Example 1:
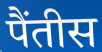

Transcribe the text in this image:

पैंतीस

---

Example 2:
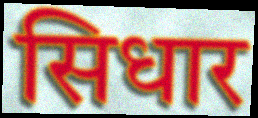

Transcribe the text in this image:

सिधार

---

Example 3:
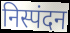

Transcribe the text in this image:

निस्पंदन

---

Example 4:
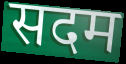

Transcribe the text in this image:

सदम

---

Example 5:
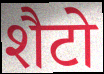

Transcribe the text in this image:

शैटो